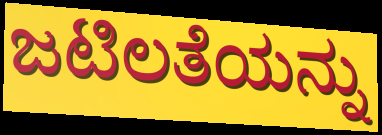
ಜಟಿಲತೆಯನ್ನು